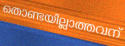
തൊണ്ടയില്ലാത്തവന്